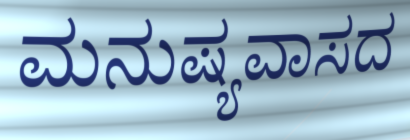
ಮನುಷ್ಯವಾಸದ